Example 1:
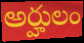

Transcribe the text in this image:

అర్హులం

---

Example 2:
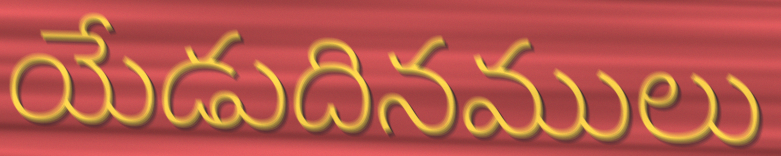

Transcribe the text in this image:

యేడుదినములు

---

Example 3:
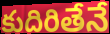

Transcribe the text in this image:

కుదిరితేనే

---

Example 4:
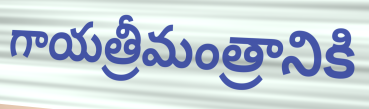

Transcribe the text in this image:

గాయత్రీమంత్రానికి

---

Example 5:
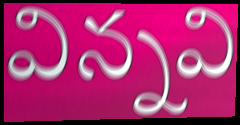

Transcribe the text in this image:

విన్నవి